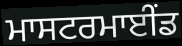
ਮਾਸਟਰਮਾਈੰਡ